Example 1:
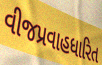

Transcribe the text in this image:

વીજપ્રવાહધારિત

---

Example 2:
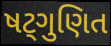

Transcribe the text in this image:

ષટ્ગુણિત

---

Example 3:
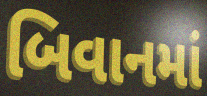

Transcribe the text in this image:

બિવાનમાં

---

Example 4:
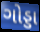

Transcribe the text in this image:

ગોડ્ડા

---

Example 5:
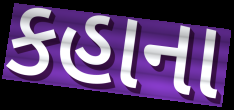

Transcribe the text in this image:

કહાના